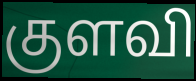
குளவி